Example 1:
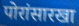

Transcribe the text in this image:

पोरांसारखा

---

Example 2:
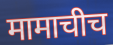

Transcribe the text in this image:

मामाचीच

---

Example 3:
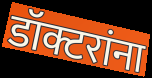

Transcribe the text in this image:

डॉक्टरांना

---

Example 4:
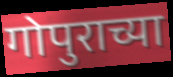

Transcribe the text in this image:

गोपुराच्या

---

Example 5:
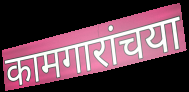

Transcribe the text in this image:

कामगारांचया